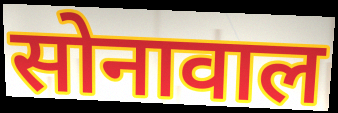
सोनावाल